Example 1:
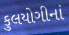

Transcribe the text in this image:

કુલયોગીનાં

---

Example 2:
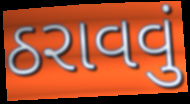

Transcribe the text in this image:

ઠરાવવું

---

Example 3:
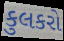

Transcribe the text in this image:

કુલકરો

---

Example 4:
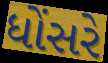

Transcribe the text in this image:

ધોંસરે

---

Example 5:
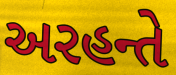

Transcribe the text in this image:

અરહન્તે